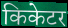
किकेटर